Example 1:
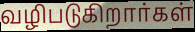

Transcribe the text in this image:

வழிபடுகிறார்கள்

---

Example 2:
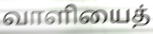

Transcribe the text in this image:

வாளியைத்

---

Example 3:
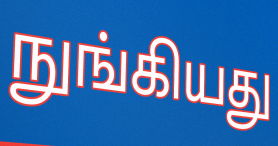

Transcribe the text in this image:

நுங்கியது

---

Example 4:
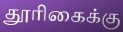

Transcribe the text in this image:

தூரிகைக்கு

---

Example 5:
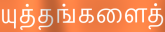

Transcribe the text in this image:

யுத்தங்களைத்